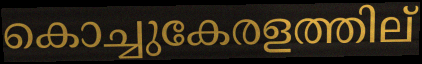
കൊച്ചുകേരളത്തില്